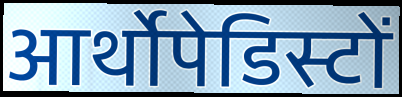
आर्थोपेडिस्टों